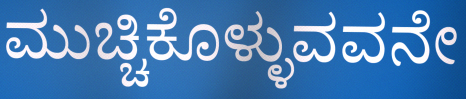
ಮುಚ್ಚಿಕೊಳ್ಳುವವನೇ